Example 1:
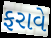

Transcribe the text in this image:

ફરાવે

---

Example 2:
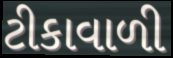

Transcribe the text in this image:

ટીકાવાળી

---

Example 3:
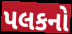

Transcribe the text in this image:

પલકનો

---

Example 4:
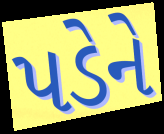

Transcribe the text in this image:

પડેને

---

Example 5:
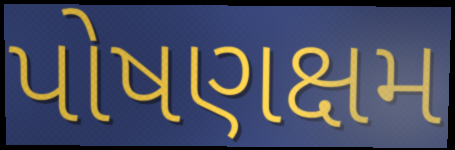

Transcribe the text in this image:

પોષણક્ષમ